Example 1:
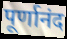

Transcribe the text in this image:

पूर्णानंद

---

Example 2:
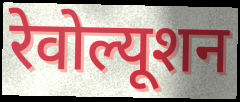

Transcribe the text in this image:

रेवोल्यूशन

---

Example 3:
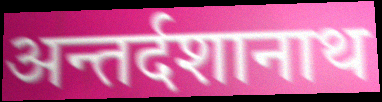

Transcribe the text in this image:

अन्तर्दशानाथ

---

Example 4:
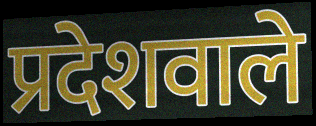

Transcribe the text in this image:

प्रदेशवाले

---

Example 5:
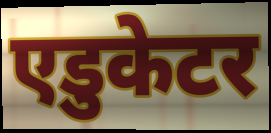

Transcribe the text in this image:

एडुकेटर